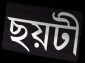
ছয়টী